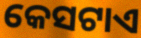
କେସଟାଏ